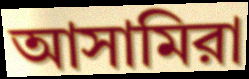
আসামিরা